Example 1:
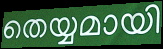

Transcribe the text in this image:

തെയ്യമായി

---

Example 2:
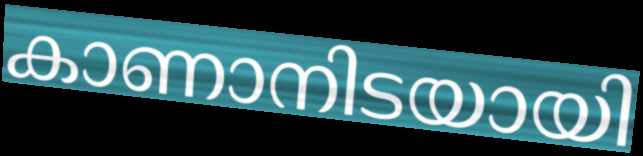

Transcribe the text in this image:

കാണാനിടയായി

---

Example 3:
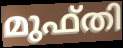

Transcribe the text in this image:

മുഫ്തി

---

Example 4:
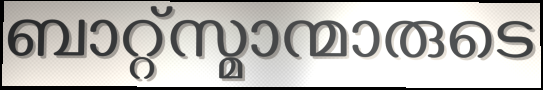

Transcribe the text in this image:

ബാറ്റ്സ്മാന്മാരുടെ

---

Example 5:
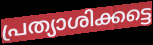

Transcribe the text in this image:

പ്രത്യാശിക്കട്ടെ